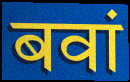
बवां